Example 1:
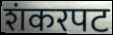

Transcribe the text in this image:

शंकरपट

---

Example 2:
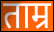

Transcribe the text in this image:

ताम्र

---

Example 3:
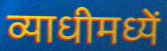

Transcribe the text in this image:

व्याधीमध्यें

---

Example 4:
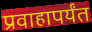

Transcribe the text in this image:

प्रवाहापर्यंत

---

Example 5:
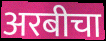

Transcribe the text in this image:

अरबीचा